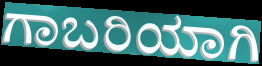
ಗಾಬರಿಯಾಗಿ